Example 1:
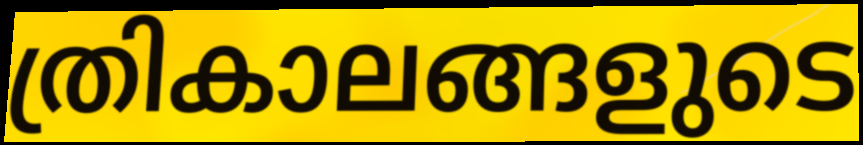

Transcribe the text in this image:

ത്രികാലങ്ങളുടെ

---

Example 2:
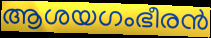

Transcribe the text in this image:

ആശയഗംഭീരൻ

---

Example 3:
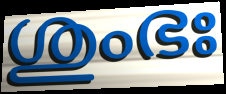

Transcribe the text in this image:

ശുംഭഃ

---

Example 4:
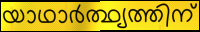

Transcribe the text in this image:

യാഥാർത്ഥ്യത്തിന്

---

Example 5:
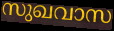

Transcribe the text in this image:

സുഖവാസ